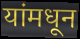
यांमधून